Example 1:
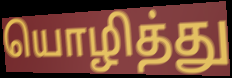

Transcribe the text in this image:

யொழித்து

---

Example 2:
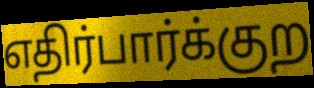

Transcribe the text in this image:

எதிர்பார்க்குற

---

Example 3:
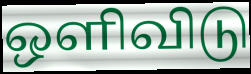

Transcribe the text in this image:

ஒளிவிடு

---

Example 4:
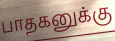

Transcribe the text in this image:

பாதகனுக்கு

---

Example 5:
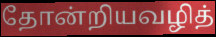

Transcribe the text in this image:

தோன்றியவழித்